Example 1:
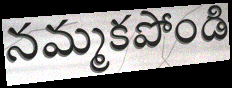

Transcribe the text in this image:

నమ్మకపోండి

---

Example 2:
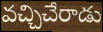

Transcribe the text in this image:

వచ్చిచేరాడు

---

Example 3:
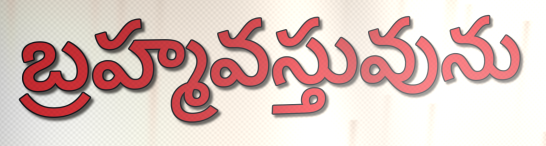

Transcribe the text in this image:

బ్రహ్మవస్తువును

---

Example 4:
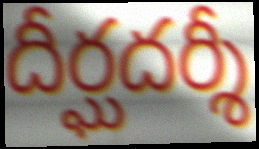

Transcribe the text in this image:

దీర్ఘదర్శీ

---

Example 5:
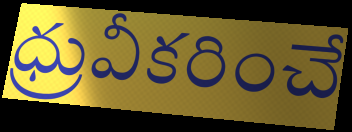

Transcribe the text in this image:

ధ్రువీకరించే